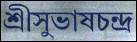
শ্রীসুভাষচন্দ্র